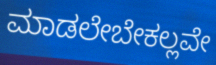
ಮಾಡಲೇಬೇಕಲ್ಲವೇ